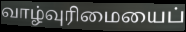
வாழ்வுரிமையைப்